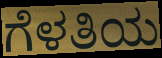
ಗೆಳತಿಯ